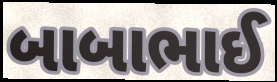
બાબાભાઈ